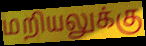
மறியலுக்கு